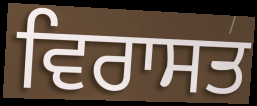
ਵਿਰਾਸਤ